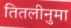
तितलीनुमा